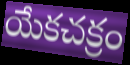
యేకచక్రం